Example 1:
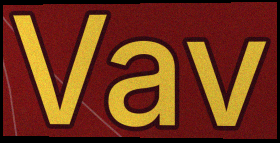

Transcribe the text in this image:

Vav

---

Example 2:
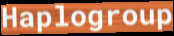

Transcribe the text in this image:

Haplogroup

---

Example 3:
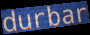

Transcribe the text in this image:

durbar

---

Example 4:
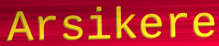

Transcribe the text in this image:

Arsikere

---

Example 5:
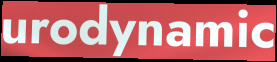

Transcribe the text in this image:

urodynamic